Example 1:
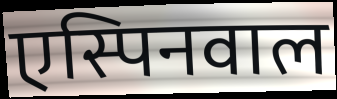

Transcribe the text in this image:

एस्पिनवाल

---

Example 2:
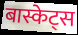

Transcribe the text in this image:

बास्केट्स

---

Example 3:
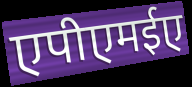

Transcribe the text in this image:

एपीएमईए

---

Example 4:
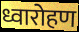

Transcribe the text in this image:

ध्वारोहण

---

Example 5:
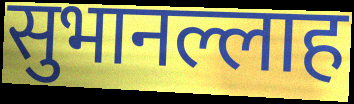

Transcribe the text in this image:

सुभानल्लाह